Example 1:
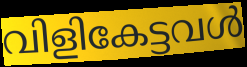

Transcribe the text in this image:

വിളികേട്ടവൾ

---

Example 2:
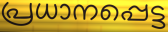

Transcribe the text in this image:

പ്രധാനപ്പെട്ട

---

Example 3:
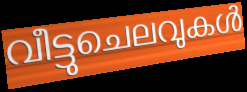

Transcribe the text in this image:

വീട്ടുചെലവുകൾ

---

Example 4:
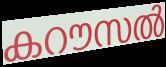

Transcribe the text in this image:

കറൗസൽ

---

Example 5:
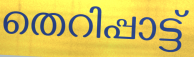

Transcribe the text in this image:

തെറിപ്പാട്ട്